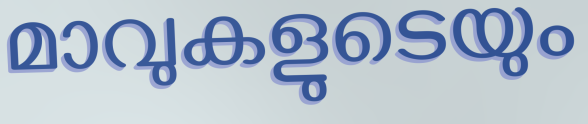
മാവുകളുടെയും